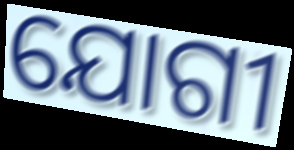
ଯୋଗୀ